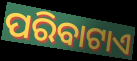
ପରିବାଟାଏ